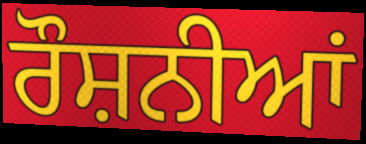
ਰੌਸ਼ਨੀਆਂ